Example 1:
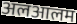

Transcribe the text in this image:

अलआलम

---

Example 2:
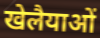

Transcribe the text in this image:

खेलैयाओं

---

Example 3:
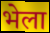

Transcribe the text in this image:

भेला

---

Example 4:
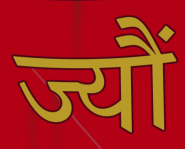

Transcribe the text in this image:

ज्यौं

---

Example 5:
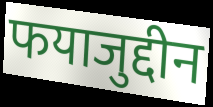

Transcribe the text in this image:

फयाजुद्दीन